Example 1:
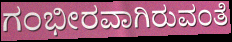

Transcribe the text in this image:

ಗಂಭೀರವಾಗಿರುವಂತೆ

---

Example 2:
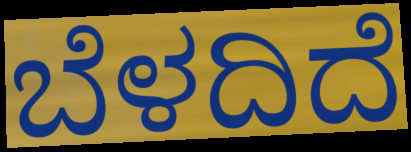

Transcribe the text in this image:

ಬೆಳದಿದೆ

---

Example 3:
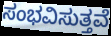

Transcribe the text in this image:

ಸಂಭವಿಸುತ್ತವೆ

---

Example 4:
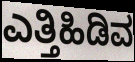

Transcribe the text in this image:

ಎತ್ತಿಹಿಡಿವ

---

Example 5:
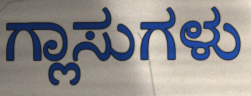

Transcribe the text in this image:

ಗ್ಲಾಸುಗಳು